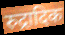
रुद्रादिक